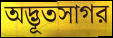
অদ্ভূতসাগর